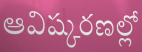
ఆవిష్కరణల్లో